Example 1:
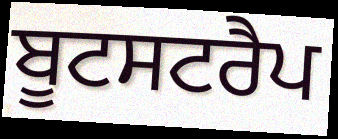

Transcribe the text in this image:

ਬੂਟਸਟਰੈਪ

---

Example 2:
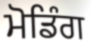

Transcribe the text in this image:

ਮੋਡਿੰਗ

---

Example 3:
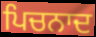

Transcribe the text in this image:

ਪਿਚਨਾਦ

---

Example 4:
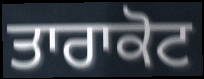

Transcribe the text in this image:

ਤਾਰਾਕੋਟ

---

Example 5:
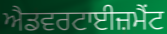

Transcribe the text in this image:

ਐਡਵਰਟਾਈਜ਼ਮੈਂਟ